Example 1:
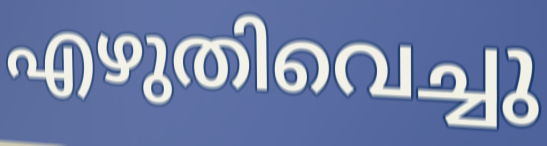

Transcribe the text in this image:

എഴുതിവെച്ചു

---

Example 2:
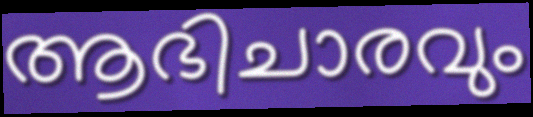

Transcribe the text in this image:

ആഭിചാരവും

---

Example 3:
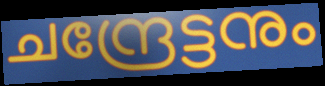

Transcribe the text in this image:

ചന്ദ്രേട്ടനും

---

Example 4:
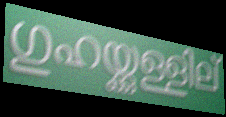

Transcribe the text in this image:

ഗുഹയ്ക്കുള്ളില്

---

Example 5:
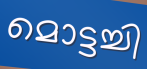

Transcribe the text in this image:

മൊട്ടച്ചി